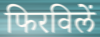
फिरविलें